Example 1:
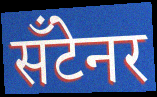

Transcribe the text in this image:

सँटेनर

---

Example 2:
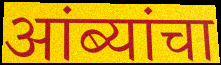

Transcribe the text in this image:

आंब्यांचा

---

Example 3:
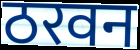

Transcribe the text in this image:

ठरवन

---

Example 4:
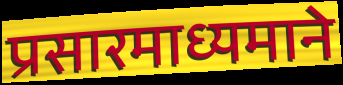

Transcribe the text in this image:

प्रसारमाध्यमाने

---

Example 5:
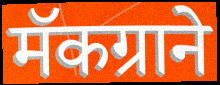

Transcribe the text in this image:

मॅकग्राने